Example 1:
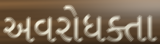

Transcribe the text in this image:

અવરોધક્તા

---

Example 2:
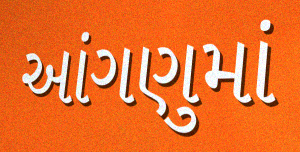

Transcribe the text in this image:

આંગણુમાં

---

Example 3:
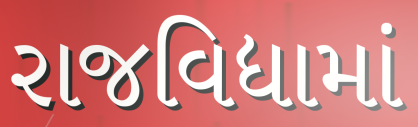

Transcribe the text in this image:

રાજવિદ્યામાં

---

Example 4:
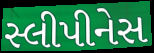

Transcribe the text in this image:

સ્લીપીનેસ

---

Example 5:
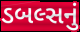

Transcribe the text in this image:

ડબલ્સનું